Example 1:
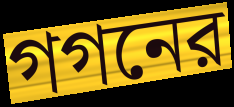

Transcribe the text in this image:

গগনের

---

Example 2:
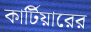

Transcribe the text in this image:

কার্টিয়ারের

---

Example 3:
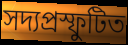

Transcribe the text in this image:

সদ্যপ্রস্ফুটিত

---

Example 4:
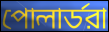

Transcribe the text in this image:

পোলার্ডরা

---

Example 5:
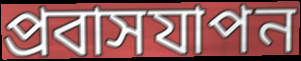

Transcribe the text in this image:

প্রবাসযাপন